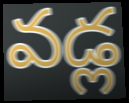
వడ్ల